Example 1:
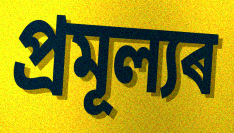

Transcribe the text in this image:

প্ৰমূল্যৰ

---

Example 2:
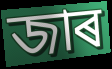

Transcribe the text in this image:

জাৰ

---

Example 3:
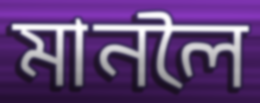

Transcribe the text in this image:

মানলৈ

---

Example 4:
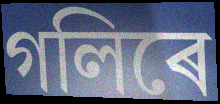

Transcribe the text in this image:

গলিৰে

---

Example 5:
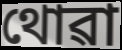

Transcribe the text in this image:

থোৱা